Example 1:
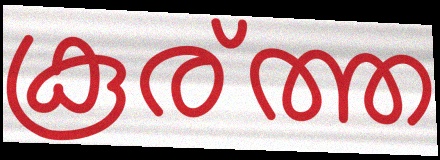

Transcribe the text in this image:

കൂര്ത്ത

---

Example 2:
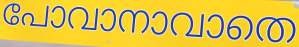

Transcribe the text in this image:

പോവാനാവാതെ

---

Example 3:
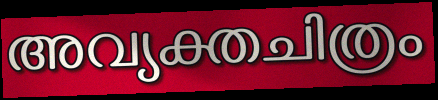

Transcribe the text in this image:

അവ്യക്തചിത്രം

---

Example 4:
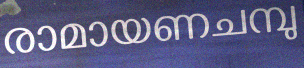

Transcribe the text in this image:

രാമായണചമ്പു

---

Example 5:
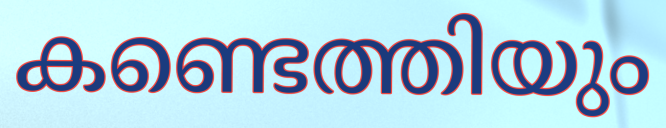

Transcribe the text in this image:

കണ്ടെത്തിയും